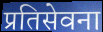
प्रतिसेवना